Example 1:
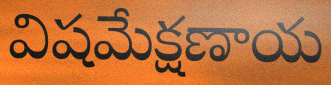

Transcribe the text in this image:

విషమేక్షణాయ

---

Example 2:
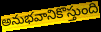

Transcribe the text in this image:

అనుభవానికొస్తుంది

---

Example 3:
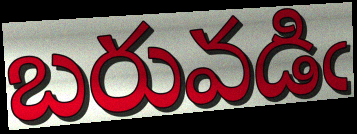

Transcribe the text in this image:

బరువడిఁ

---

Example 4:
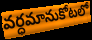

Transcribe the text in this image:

వర్ధమానుకోటలో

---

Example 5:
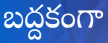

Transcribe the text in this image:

బద్దకంగా